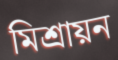
মিশ্রায়ন